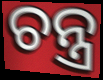
ଚନ୍ତ୍ର